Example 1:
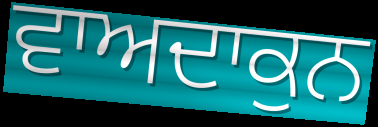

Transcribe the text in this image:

ਵਾਅਦਾਕੁਨ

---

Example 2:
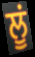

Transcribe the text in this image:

ਲੂਂ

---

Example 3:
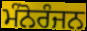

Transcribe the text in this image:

ਮੰਨੋਰੰਜਨ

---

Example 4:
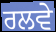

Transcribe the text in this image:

ਰਲਵੇ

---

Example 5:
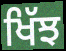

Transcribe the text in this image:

ਖਿੱਝ